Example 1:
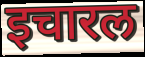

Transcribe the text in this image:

इचारल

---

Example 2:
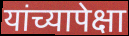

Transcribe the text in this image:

यांच्यापेक्षा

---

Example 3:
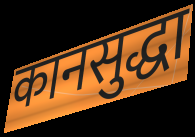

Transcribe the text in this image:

कानसुद्धा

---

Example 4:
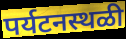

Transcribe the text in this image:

पर्यटनस्थळी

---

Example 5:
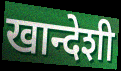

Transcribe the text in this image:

खान्देशी